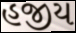
હજીય